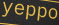
yeppo